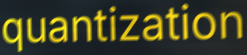
quantization